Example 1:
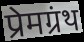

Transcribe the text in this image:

प्रेमग्रंथ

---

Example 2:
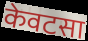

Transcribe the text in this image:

केवटसा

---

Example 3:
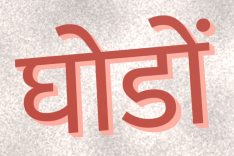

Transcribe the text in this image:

घोडों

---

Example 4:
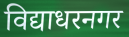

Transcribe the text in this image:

विद्याधरनगर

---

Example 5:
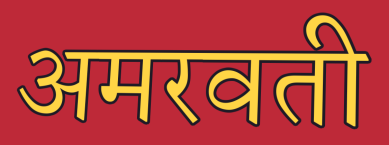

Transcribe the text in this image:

अमरवती